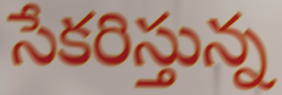
సేకరిస్తున్న